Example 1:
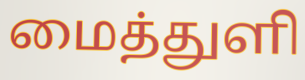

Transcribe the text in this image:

மைத்துளி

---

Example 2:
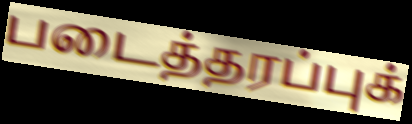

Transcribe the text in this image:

படைத்தரப்புக்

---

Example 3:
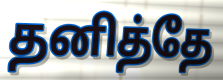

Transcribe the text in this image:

தனித்தே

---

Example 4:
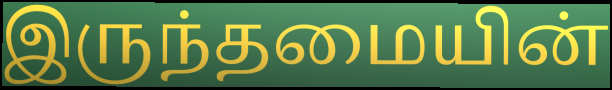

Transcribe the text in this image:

இருந்தமையின்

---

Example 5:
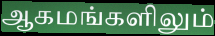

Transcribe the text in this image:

ஆகமங்களிலும்